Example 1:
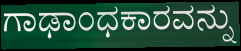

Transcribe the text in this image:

ಗಾಢಾಂಧಕಾರವನ್ನು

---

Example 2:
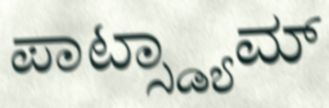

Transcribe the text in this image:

ಪಾಟ್ಸ್ಡ್ಯಾಮ್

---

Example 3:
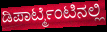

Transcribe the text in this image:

ಡಿಪಾರ್ಟ್ಮೆಂಟಿನಲ್ಲಿ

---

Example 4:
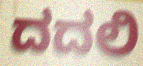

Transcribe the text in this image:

ದದಲಿ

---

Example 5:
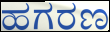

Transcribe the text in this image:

ಹಗರಣ